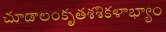
చూడాలంకృతశశికళాభ్యాం